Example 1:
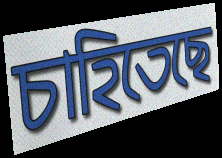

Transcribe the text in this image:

চাহিতেছে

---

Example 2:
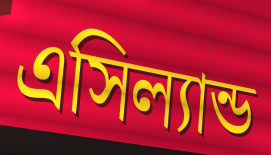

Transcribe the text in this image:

এসিল্যান্ড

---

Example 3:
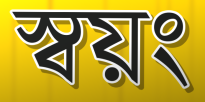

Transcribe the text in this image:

স্বয়ং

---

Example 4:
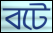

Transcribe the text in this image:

বটে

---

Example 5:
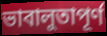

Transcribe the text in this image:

ভাবালুতাপূর্ণ